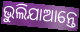
ଭୁଲିଯାଆନ୍ତେ